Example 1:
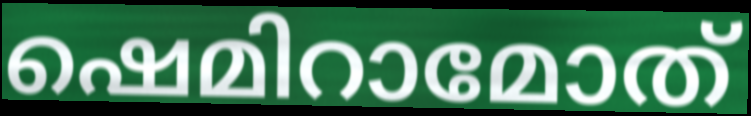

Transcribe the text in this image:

ഷെമിറാമോത്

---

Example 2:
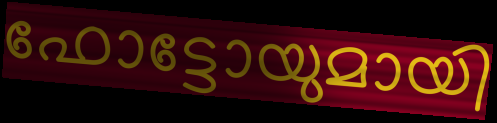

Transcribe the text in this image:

ഫോട്ടോയുമായി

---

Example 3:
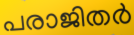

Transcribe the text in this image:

പരാജിതർ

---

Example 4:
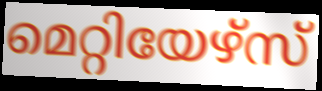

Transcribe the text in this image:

മെറ്റിയേഴ്സ്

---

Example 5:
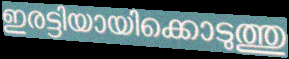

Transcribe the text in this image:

ഇരട്ടിയായിക്കൊടുത്തു